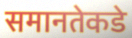
समानतेकडे